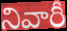
నివారీ